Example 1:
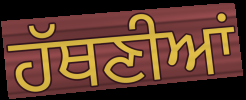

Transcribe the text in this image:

ਹੱਥਣੀਆਂ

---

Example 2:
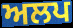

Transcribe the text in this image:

ਅਲਪ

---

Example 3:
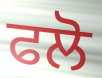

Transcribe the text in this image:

ਫਲੋ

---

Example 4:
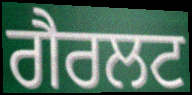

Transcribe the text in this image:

ਗੈਰਲਟ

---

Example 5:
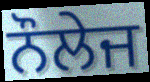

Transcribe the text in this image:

ਨੌਲੇਜ